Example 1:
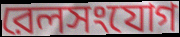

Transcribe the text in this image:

রেলসংযোগ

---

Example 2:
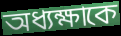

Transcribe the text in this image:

অধ্যক্ষাকে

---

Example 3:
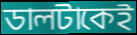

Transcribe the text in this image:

ডালটাকেই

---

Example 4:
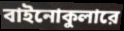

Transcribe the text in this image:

বাইনোকুলারে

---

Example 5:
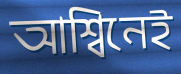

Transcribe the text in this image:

আশ্বিনেই